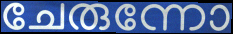
ചേരുന്നോ